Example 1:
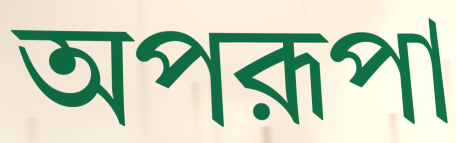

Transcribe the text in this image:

অপরূপা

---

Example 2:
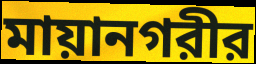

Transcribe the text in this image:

মায়ানগরীর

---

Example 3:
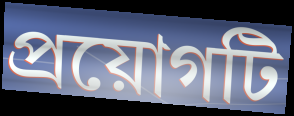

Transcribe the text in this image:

প্রয়োগটি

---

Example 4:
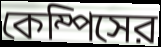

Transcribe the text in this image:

কেম্পিসের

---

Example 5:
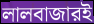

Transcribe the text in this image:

লালবাজারই